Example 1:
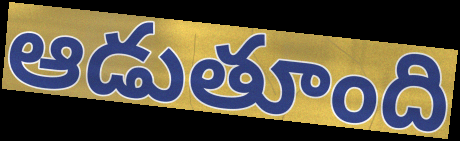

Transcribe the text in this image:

ఆడుతూంది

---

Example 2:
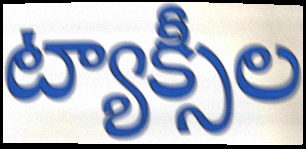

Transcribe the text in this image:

ట్యాక్సీల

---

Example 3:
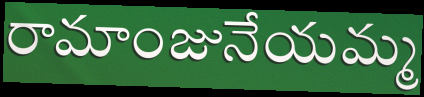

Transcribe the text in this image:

రామాంజునేయమ్మ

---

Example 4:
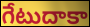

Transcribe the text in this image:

గేటుదాకా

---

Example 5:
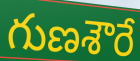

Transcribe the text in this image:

గుణశౌరే